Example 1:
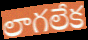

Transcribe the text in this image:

లాగలేక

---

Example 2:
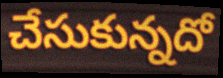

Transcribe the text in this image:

చేసుకున్నదో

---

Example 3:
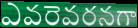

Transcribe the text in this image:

ఎవరెవరనగా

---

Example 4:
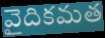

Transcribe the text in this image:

వైదికమత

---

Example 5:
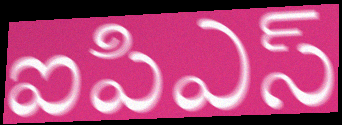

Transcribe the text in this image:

ఐపిఎస్